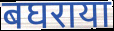
बघराया